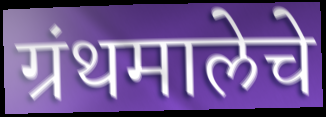
ग्रंथमालेचे